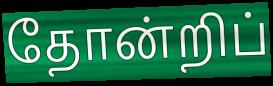
தோன்றிப்